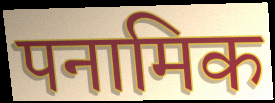
पनामिक